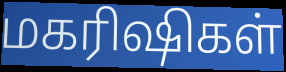
மகரிஷிகள்